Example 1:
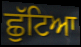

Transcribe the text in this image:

ਛੁੱਟਿਆ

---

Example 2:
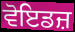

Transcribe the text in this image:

ਵੋਇਡਜ਼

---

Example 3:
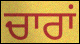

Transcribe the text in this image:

ਚਾਰਾਂ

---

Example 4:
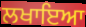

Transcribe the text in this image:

ਲਖਾਇਆ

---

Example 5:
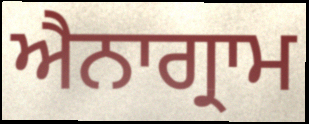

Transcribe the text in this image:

ਐਨਾਗ੍ਰਾਮ